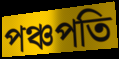
পঞ্চপতি